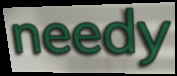
needy